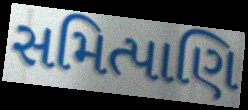
સમિત્પાણિ